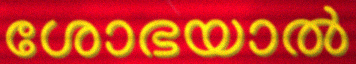
ശോഭയാൽ